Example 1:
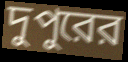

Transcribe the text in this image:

দুপুরের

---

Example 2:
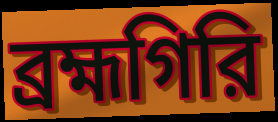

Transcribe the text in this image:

ব্রহ্মগিরি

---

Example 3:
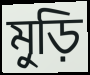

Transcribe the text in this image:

মুড়ি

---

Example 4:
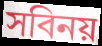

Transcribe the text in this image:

সবিনয়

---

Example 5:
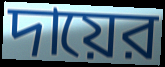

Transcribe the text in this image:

দায়ের